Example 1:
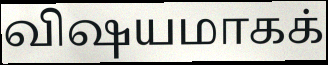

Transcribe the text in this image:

விஷயமாகக்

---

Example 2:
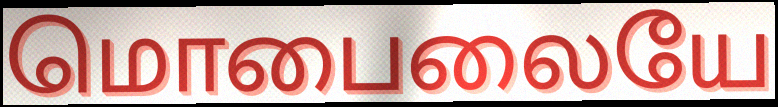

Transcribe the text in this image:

மொபைலையே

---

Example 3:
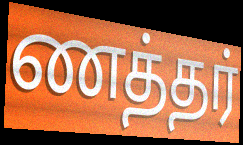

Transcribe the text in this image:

ணத்தர்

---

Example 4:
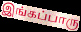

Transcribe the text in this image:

இங்கப்பாரு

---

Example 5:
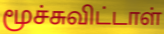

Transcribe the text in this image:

மூச்சுவிட்டாள்